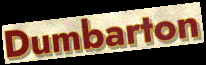
Dumbarton